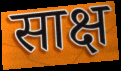
साक्ष